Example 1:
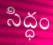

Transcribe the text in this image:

సిద్ధం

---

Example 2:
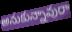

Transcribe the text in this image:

అనుకున్నావురా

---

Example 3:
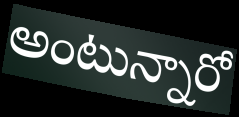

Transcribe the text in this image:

అంటున్నారో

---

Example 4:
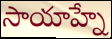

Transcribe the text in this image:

సాయాహ్నే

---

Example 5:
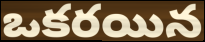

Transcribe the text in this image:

ఒకరయిన